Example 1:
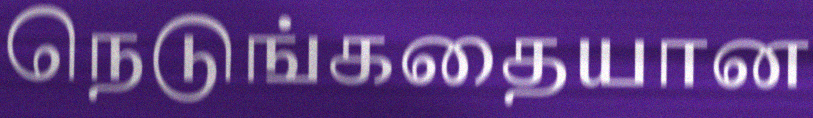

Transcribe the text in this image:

நெடுங்கதையான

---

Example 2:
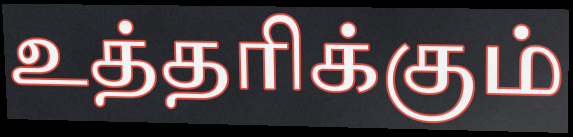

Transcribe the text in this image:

உத்தரிக்கும்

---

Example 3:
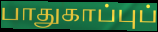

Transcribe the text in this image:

பாதுகாப்புப்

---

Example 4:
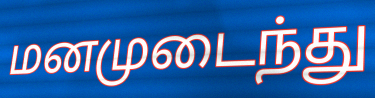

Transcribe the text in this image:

மனமுடைந்து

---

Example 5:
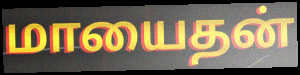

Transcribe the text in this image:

மாயைதன்